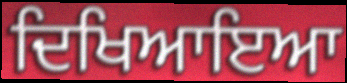
ਦਿਖਿਆਇਆ